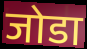
जोडा